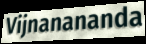
Vijnanananda